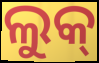
ଲୁକ୍